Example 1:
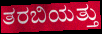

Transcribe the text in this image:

ತರಬಿಯತ್ತು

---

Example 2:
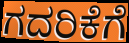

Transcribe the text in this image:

ಗದರಿಕೆಗೆ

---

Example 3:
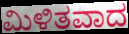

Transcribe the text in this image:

ಮಿಳಿತವಾದ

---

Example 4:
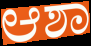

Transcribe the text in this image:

ಆಶಾ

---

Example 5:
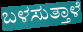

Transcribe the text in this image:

ಬಳಸುತ್ತಾಳೆ